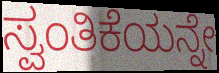
ಸ್ವಂತಿಕೆಯನ್ನೇ